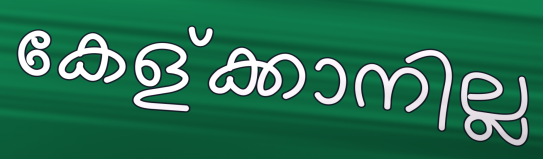
കേള്ക്കാനില്ല